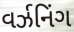
વર્ઝનિંગ